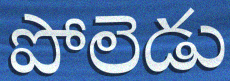
పోలెడు